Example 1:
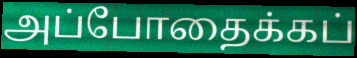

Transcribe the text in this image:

அப்போதைக்கப்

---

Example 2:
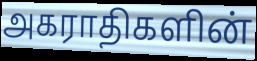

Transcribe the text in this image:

அகராதிகளின்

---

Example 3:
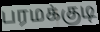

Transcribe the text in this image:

பரமக்குடி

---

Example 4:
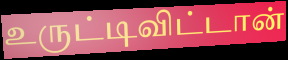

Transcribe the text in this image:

உருட்டிவிட்டான்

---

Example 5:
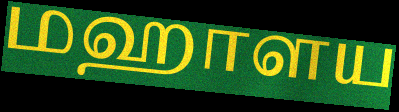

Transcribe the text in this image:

மஹாளய